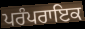
ਪਰੰਪਰਾਇਕ